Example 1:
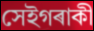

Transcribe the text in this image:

সেইগৰাকী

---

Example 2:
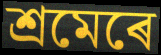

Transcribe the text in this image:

শ্ৰমেৰে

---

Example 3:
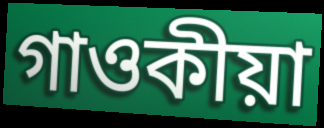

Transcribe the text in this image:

গাওকীয়া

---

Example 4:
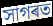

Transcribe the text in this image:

সাগৰত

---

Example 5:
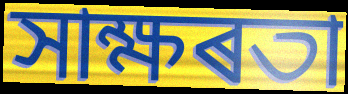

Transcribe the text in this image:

সাক্ষৰতা